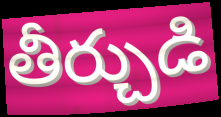
తీర్చుడి